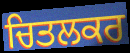
ਚਿਤਲਕਰ